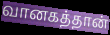
வானகத்தான்